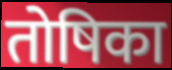
तोषिका